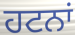
ਹਟਨਾਂ